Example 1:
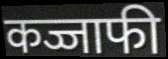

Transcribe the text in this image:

कज्जाफी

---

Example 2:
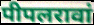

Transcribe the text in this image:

पीपलरावां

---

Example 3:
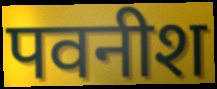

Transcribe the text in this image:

पवनीश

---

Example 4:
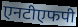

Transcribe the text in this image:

एनटीएफपी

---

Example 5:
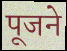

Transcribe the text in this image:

पूजने